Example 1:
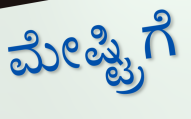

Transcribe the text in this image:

ಮೇಷ್ಟ್ರಿಗೆ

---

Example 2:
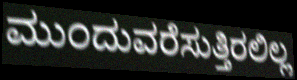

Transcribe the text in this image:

ಮುಂದುವರೆಸುತ್ತಿರಲಿಲ್ಲ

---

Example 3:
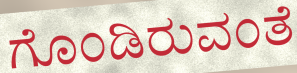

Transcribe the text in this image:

ಗೊಂಡಿರುವಂತೆ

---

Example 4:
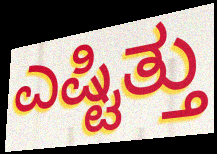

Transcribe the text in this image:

ಎಷ್ಟಿತ್ತು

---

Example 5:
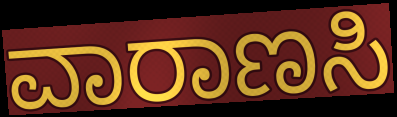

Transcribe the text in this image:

ವಾರಾಣಸಿ